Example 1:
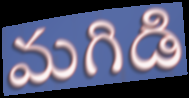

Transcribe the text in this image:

మగిడి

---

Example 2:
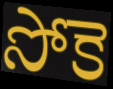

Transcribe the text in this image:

సోకె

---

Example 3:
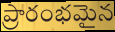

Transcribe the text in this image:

ప్రారంభమైన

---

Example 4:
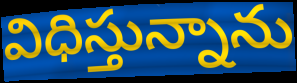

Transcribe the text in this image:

విధిస్తున్నాను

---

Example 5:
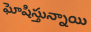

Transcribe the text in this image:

ఘోషిస్తున్నాయి